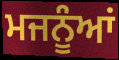
ਮਜਨੂੰਆਂ